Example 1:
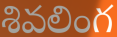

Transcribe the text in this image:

శివలింగ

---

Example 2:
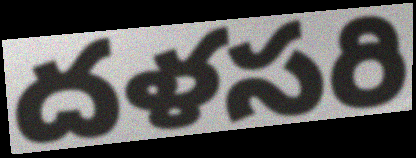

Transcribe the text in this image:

దళసరి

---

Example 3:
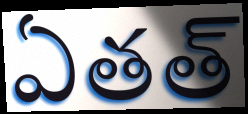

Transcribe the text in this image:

ఏతత్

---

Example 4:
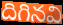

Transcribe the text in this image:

దిగినవి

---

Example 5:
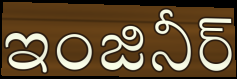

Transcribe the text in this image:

ఇంజినీర్